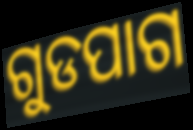
ଗୁଡପାଗ